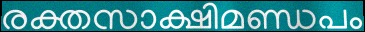
രക്തസാക്ഷിമണ്ഡപം